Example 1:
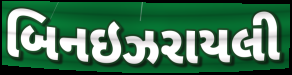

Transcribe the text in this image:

બિનઇઝરાયલી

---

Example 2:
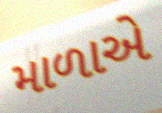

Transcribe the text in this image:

માળાએ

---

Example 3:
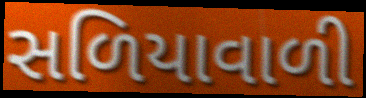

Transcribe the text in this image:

સળિયાવાળી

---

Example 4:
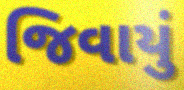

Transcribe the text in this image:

જિવાયું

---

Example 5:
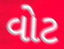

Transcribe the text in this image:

વોટ